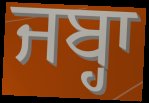
ਜਬ੍ਹਾ